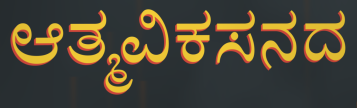
ಆತ್ಮವಿಕಸನದ